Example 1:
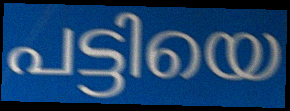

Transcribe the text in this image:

പട്ടിയെ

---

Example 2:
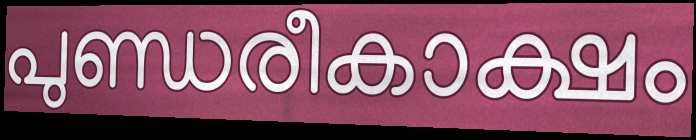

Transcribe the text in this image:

പുണ്ഡരീകാക്ഷം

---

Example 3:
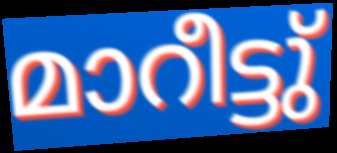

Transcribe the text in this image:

മാറീട്ടു്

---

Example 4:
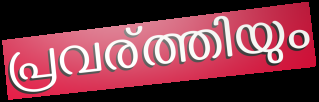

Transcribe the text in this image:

പ്രവര്ത്തിയും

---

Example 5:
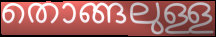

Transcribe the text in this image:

തൊങ്ങലുള്ള